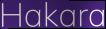
Hakara